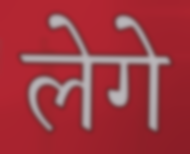
लेगे